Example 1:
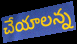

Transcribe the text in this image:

చేయాలన్న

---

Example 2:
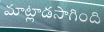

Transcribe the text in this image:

మాట్లాడసాగింది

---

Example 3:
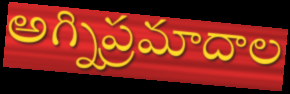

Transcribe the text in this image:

అగ్నిప్రమాదాల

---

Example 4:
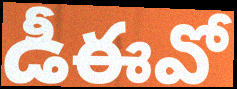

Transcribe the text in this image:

డీఈవో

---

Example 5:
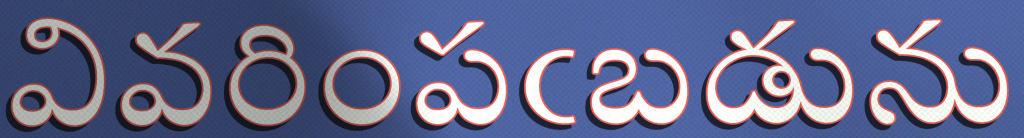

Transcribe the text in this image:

వివరింపఁబడును